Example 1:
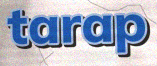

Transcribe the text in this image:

tarap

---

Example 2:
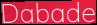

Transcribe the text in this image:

Dabade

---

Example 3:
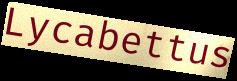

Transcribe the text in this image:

Lycabettus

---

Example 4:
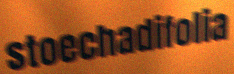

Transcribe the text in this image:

stoechadifolia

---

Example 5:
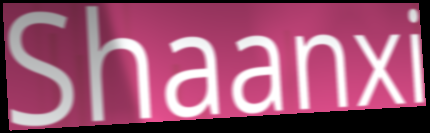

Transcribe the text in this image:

Shaanxi